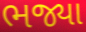
ભજ્યા